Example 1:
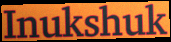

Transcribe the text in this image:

Inukshuk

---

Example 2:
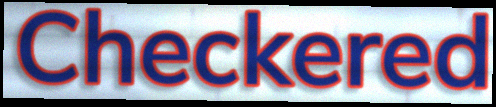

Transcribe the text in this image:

Checkered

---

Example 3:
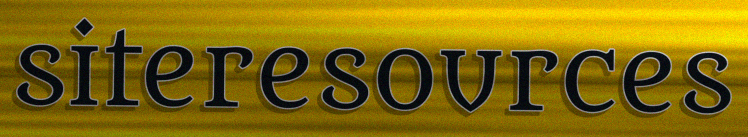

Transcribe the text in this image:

siteresources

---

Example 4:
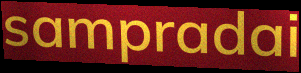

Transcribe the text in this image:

sampradai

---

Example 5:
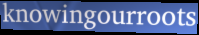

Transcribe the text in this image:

knowingourroots